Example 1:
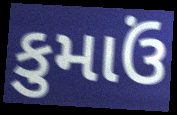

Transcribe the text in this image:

કુમાઉં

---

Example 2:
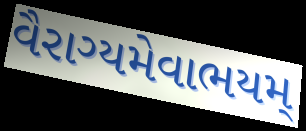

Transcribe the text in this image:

વૈરાગ્યમેવાભયમ્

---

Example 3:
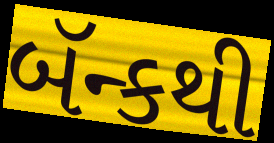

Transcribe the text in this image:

બૅન્કથી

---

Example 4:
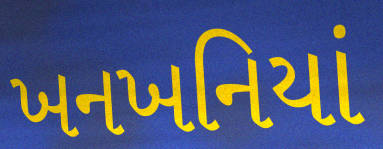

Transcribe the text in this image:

ખનખનિયાં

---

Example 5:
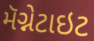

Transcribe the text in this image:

મૅગ્નેટાઇટ